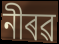
নীৰৱ